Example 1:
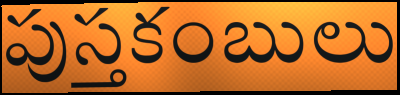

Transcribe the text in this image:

పుస్తకంబులు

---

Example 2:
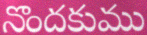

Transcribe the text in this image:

నొందకుము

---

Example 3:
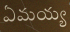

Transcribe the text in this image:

ఏమయ్య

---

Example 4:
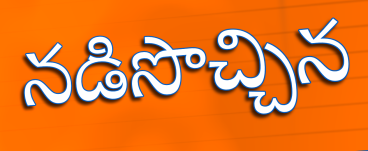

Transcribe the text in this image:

నడిసొచ్చిన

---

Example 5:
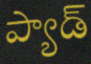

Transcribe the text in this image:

ప్యాడ్